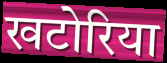
खटोरिया